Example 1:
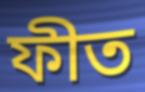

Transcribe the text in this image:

ফীত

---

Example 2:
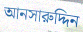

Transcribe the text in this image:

আনসারুদ্দিন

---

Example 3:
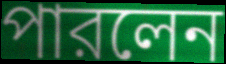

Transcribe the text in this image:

পারলেন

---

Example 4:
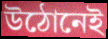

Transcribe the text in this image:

উঠোনেই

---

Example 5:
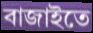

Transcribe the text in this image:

বাজাইতে